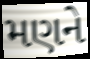
મણને